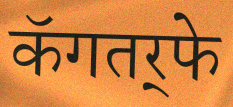
कॅगतर्फे